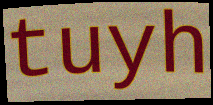
tuyh